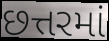
છત્તરમાં